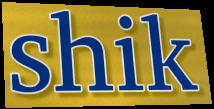
shik